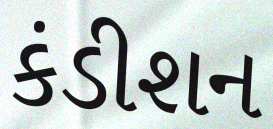
કંડીશન